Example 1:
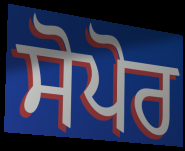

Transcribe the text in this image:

ਸੋਪੋਰ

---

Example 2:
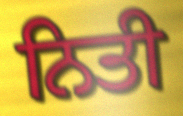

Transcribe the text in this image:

ਨਿਤੀ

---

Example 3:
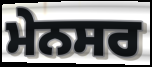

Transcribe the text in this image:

ਮੇਨਸਰ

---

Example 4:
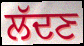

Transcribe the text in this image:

ਲੱਦਣ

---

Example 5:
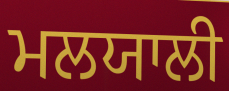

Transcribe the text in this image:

ਮਲਯਾਲੀ